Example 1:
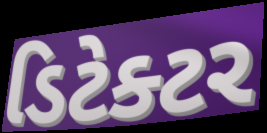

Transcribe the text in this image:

ડિટેક્ટર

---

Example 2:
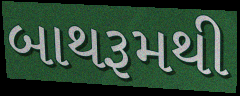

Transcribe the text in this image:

બાથરૂમથી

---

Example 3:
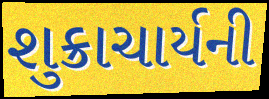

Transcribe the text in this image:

શુક્રાચાર્યની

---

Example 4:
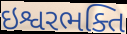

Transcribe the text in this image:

ઇશ્વરભક્તિ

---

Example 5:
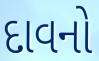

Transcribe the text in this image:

દાવનો